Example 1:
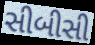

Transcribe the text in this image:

સીબીસી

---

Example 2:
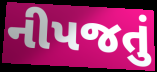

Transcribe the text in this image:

નીપજતું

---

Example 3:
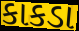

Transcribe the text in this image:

કાકડા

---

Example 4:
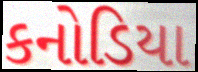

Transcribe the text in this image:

કનોડિયા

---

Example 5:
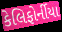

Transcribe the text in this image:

કેલિફોર્નીયા